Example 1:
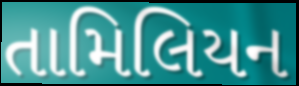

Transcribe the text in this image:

તામિલિયન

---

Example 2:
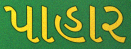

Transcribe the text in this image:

પાહાર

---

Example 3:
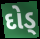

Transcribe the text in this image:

દોડ્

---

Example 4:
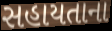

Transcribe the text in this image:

સહાયતાના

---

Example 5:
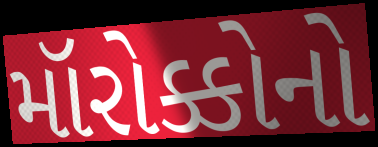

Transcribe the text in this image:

મૉરોક્કોનો